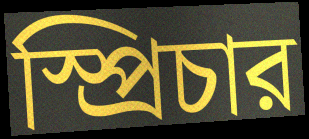
স্প্রিচার